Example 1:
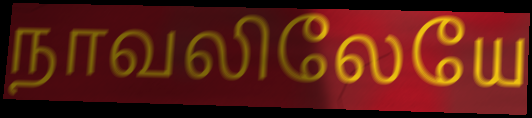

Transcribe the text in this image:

நாவலிலேயே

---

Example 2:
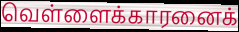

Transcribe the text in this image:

வெள்ளைக்காரனைக்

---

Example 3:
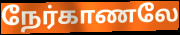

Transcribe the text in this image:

நேர்காணலே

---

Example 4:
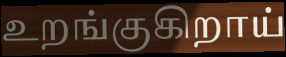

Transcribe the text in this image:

உறங்குகிறாய்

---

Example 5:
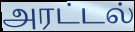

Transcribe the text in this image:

அரட்டல்